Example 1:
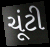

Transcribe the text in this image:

ચૂંટી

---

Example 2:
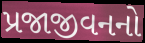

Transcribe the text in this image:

પ્રજાજીવનનો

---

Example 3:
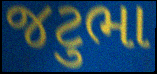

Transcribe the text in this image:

જટુભા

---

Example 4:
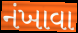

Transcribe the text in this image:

નંખાવા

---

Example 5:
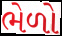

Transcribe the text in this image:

ભેળો